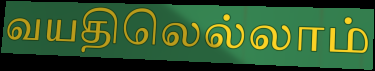
வயதிலெல்லாம்